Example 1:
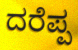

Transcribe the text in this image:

ದರೆಪ್ಪ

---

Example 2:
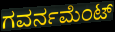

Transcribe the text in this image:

ಗವರ್ನಮೆಂಟ್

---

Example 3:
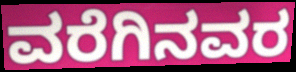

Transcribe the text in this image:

ವರೆಗಿನವರ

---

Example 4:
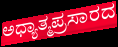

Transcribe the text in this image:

ಅಧ್ಯಾತ್ಮಪ್ರಸಾರದ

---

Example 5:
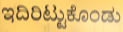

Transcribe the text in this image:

ಇದಿರಿಟ್ಟುಕೊಂಡು